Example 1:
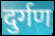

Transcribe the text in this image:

दुर्गण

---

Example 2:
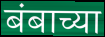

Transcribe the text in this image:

बंबाच्या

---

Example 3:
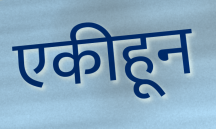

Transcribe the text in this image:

एकीहून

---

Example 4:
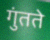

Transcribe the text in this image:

गुंतते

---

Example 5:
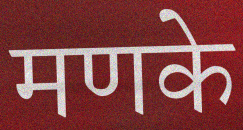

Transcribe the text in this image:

मणके